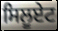
ਸਿਲੂਏਟ